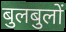
बुलबुलों